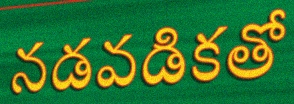
నడవడికతో